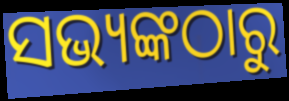
ସଭ୍ୟଙ୍କଠାରୁ